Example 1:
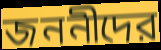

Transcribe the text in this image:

জননীদের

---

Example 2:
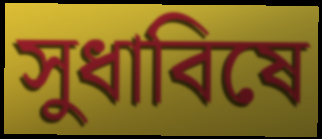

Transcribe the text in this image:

সুধাবিষে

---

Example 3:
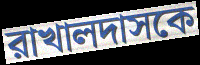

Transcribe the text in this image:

রাখালদাসকে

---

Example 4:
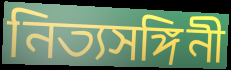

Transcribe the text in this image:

নিত্যসঙ্গিনী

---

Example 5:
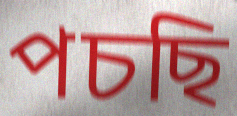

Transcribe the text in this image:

পচছি